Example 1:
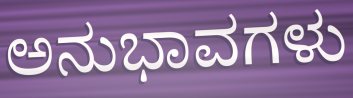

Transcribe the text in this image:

ಅನುಭಾವಗಳು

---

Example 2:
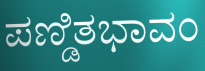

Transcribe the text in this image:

ಪಣ್ಡಿತಭಾವಂ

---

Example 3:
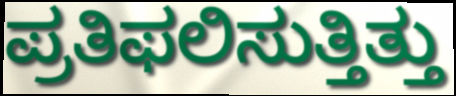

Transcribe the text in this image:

ಪ್ರತಿಫಲಿಸುತ್ತಿತ್ತು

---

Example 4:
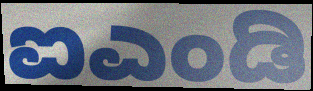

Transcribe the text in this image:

ಐಎಂಡಿ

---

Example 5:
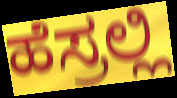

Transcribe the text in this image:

ಹೆಸ್ರಲ್ಲಿ